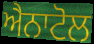
ਐਨਾਟੋਲ